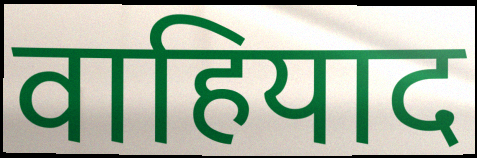
वाहियाद